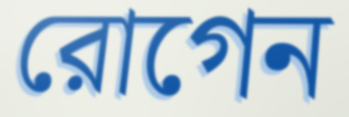
রোগেন